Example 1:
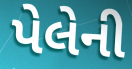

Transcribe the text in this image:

પેલેની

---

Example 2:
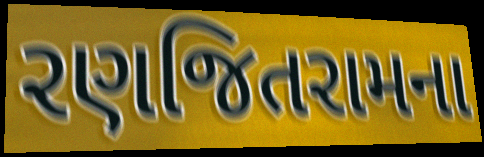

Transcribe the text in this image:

રણજિતરામના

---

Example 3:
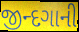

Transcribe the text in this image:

જીન્દગાની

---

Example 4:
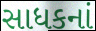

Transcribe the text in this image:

સાધકનાં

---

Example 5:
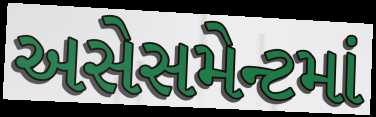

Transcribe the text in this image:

અસેસમેન્ટમાં